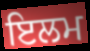
ਇਲਮ